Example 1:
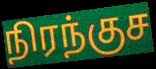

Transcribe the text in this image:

நிரந்குச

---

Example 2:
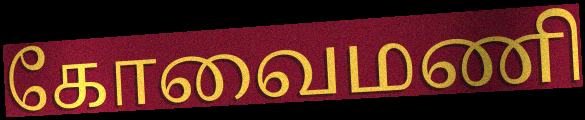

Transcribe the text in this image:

கோவைமணி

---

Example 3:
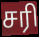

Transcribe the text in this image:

சரி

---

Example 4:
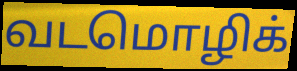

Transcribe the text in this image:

வடமொழிக்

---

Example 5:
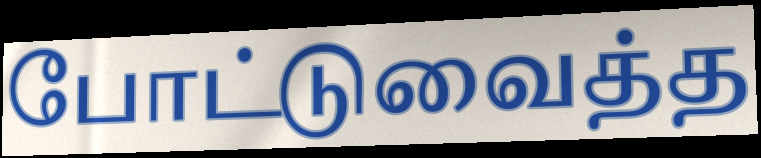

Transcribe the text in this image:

போட்டுவைத்த